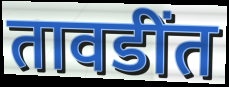
तावडींत